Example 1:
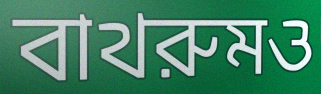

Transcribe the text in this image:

বাথরুমও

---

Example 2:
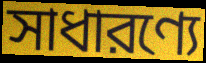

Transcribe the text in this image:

সাধারণ্যে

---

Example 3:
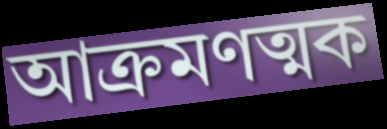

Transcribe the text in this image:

আক্রমণত্মক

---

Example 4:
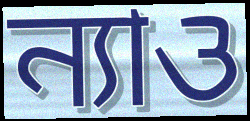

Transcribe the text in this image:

ন্যাও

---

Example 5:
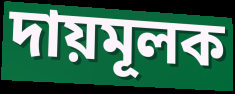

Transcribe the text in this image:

দায়মূলক